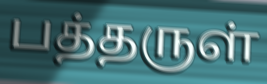
பத்தருள்